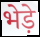
भेड़े